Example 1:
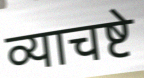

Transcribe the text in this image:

व्याचष्टे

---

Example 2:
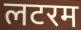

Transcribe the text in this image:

लटरम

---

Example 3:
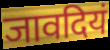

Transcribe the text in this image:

जावदियं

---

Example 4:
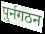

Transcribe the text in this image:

पुर्नगठन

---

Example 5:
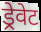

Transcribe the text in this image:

ड्रेवेट